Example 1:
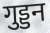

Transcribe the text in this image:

गुड्डन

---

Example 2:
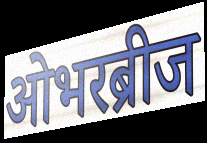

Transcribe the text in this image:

ओभरब्रीज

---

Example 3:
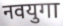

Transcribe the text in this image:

नवयुगा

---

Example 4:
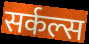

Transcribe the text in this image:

सर्कल्स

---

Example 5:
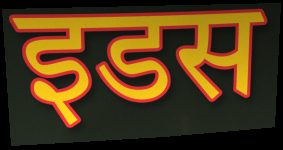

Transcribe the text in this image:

इडस